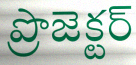
ప్రొజెక్టర్